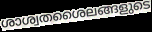
ശാശ്വതശൈലങ്ങളുടെ